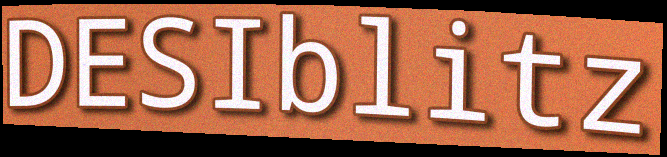
DESIblitz